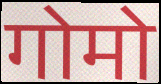
गोमो